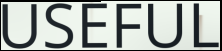
USEFUL